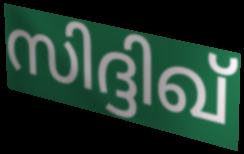
സിദ്ദിഖ്